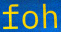
foh